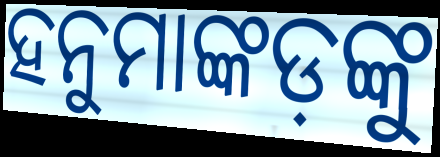
ହନୁମାଙ୍କଡ଼ଙ୍କୁ